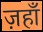
ज़हाँ